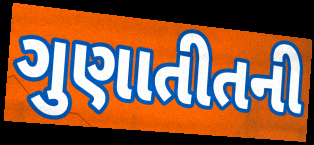
ગુણાતીતની